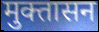
मुक्तासन